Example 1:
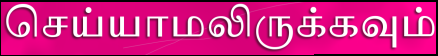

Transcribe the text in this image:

செய்யாமலிருக்கவும்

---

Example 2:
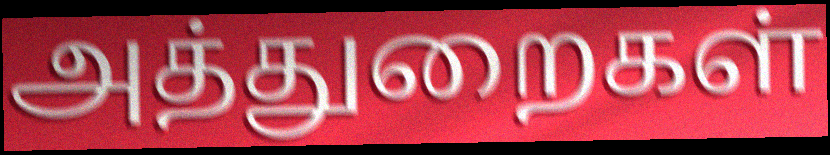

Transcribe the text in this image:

அத்துறைகள்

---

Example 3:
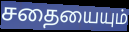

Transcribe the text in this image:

சதையையும்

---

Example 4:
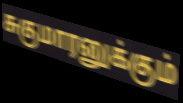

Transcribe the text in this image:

சுகுமாரனுக்கும்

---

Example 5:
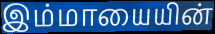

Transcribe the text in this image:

இம்மாயையின்